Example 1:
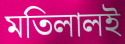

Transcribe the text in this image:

মতিলালই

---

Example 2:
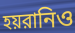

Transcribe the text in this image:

হয়রানিও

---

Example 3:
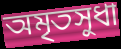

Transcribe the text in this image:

অমৃতসুধা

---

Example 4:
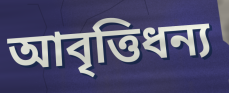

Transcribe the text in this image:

আবৃত্তিধন্য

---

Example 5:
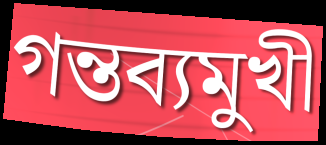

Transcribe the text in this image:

গন্তব্যমুখী